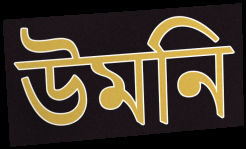
উমনি